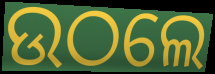
ଉଠଲେ